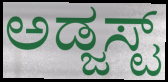
ಅಡ್ಜಸ್ಟ್